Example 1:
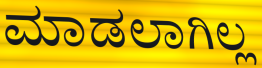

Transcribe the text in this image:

ಮಾಡಲಾಗಿಲ್ಲ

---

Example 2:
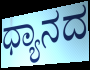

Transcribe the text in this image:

ಧ್ಯಾನದ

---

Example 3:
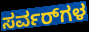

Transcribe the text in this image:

ಸರ್ವರ್‌ಗಳ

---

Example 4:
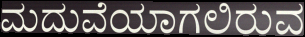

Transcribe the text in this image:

ಮದುವೆಯಾಗಲಿರುವ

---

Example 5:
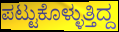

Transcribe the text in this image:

ಪಟ್ಟುಕೊಳ್ಳುತ್ತಿದ್ದ